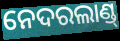
ନେଦରଲାଣ୍ଡ୍